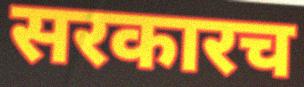
सरकारच